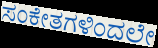
ಸಂಕೇತಗಳಿಂದಲೇ